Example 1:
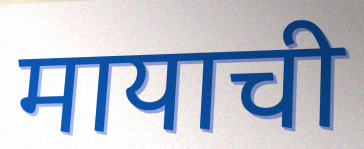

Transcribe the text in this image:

मायाची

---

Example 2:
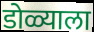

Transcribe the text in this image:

डोळ्याला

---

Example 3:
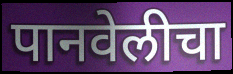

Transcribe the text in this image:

पानवेलीचा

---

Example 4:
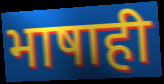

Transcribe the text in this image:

भाषाही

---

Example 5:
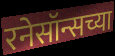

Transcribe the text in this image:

रनेसॉन्सच्या